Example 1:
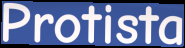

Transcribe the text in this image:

Protista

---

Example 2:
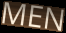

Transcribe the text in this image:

MEN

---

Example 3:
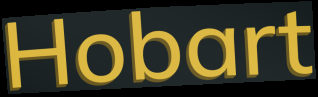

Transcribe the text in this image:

Hobart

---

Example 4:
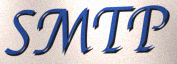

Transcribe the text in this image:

SMTP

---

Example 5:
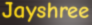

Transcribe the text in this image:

Jayshree